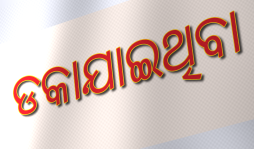
ଡକାଯାଇଥିବା